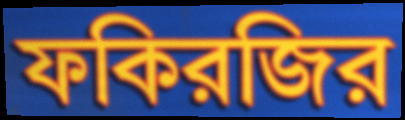
ফকিরজির